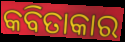
କବିତାକାର